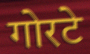
गोरटे